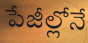
పేజీల్లోనే